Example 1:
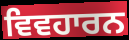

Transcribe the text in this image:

ਵਿਵਹਾਰਨ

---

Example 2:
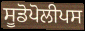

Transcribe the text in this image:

ਸੂਡੋਪੋਲੀਪਸ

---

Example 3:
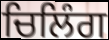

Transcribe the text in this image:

ਚਿਲਿੰਗ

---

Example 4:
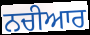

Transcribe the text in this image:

ਨਚੀਆਰ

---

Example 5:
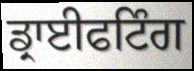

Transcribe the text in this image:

ਡ੍ਰਾਈਫਟਿੰਗ